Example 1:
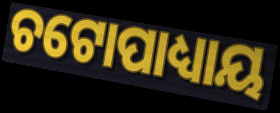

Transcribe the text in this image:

ଚଟୋପାଧ୍ୟାୟ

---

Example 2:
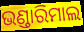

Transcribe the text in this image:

ଭଣ୍ଡାରିମାଲ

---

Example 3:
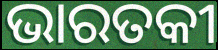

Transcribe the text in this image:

ଭାରତକୀ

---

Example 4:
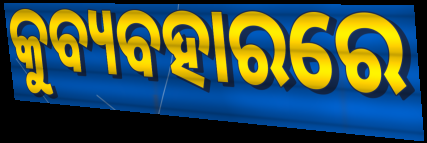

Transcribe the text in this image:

କୁବ୍ୟବହାରରେ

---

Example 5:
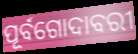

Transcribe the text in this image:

ପୂର୍ବଗୋଦାବରୀ